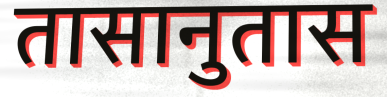
तासानुतास